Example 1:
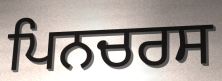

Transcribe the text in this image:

ਪਿਨਚਰਸ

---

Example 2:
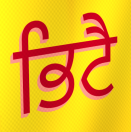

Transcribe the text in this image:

ਭਿਟੈ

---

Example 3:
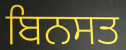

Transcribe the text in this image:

ਬਿਨਸਤ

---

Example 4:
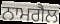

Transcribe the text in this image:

ਨਾਮਗੈਲ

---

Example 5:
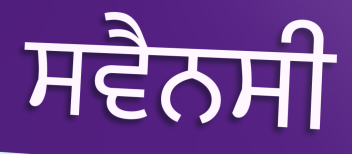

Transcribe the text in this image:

ਸਵੈਨਸੀ